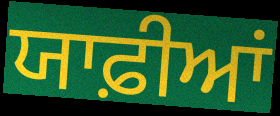
ਯਾਫ਼ੀਆਂ